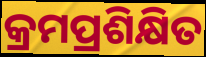
କ୍ରମପ୍ରଶିକ୍ଷିତ